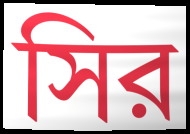
সির